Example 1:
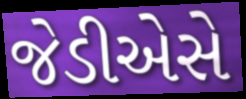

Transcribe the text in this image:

જેડીએસે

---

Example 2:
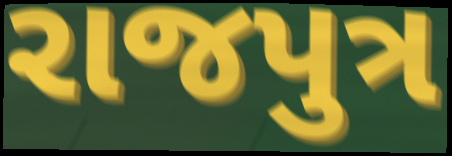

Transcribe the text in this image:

રાજપુત્ર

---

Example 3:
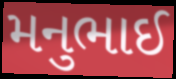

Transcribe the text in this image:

મનુભાઈ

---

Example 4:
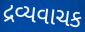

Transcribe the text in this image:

દ્રવ્યવાચક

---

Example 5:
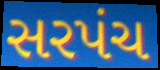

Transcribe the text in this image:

સરપંચ